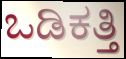
ಒಡಿಕತ್ತಿ